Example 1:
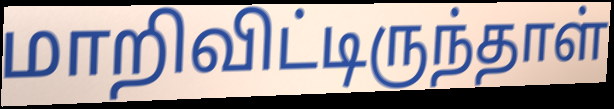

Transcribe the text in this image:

மாறிவிட்டிருந்தாள்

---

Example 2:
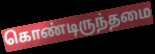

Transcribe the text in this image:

கொண்டிருந்தமை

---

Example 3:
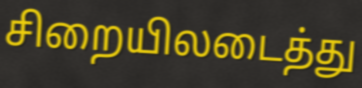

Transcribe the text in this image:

சிறையிலடைத்து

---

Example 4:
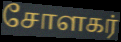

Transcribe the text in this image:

சோளகர்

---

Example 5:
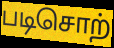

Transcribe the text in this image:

படிசொற்